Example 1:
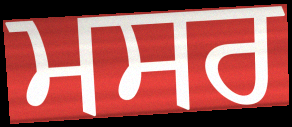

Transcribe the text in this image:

ਮਸਰ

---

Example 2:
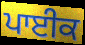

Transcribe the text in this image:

ਪਾਈਕ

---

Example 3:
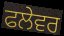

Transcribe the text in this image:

ਫਲੇਵਰ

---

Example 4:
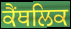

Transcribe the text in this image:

ਕੈਂਥਲਿਕ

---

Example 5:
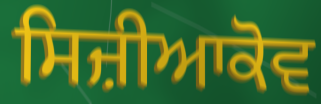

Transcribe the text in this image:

ਸਿਜ਼ੀਆਕੋਵ